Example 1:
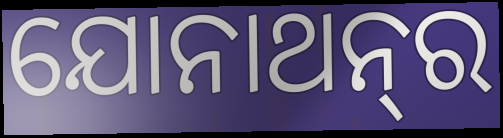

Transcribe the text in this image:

ଯୋନାଥନ୍‍ର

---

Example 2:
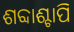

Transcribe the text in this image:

ଶବ୍ଦାଶ୍ଚାପି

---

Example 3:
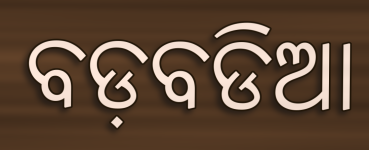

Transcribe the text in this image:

ବଡ଼ବଡିଆ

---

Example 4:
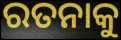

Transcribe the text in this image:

ରତନାକୁ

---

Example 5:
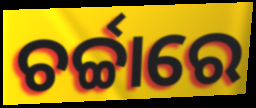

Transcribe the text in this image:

ଚର୍ଚ୍ଚାରେ